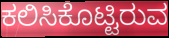
ಕಲಿಸಿಕೊಟ್ಟಿರುವ